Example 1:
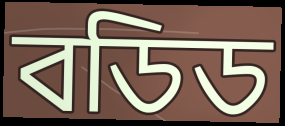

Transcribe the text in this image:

বডিড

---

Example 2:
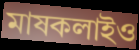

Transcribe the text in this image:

মাষকলাইও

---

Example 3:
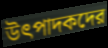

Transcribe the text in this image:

উৎপাদকদের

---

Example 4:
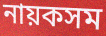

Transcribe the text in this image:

নায়কসম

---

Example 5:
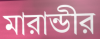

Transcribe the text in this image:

মারান্ডীর